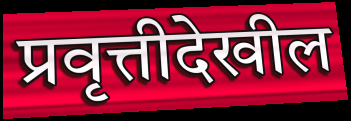
प्रवृत्तीदेखील